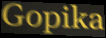
Gopika